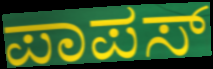
ಪಾಪಸ್